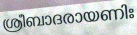
ശ്രീബാദരായണിഃ